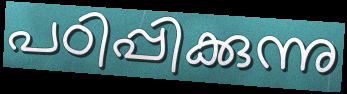
പഠിപ്പിക്കുന്നു